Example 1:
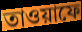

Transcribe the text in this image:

তাওয়াফে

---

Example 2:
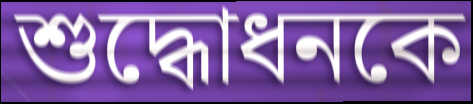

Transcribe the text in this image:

শুদ্ধোধনকে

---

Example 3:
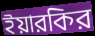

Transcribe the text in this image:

ইয়ারকির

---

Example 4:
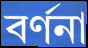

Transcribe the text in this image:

বর্ণনা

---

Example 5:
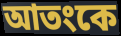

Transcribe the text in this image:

আতংকে